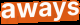
aways